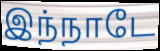
இந்நாடே